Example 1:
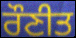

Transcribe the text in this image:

ਰੌਣੀਤ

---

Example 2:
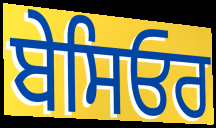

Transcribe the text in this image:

ਬੇਸਿਓਰ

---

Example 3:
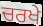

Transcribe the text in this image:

ਚਰਖੇ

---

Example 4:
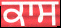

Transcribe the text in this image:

ਕਾਸ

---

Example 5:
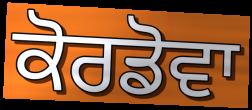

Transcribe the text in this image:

ਕੋਰਡੋਵਾ